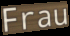
Frau